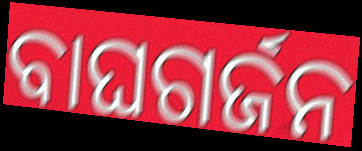
ବାଘଗର୍ଜନ